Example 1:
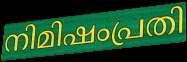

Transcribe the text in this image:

നിമിഷംപ്രതി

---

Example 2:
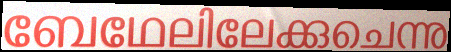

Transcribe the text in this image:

ബേഥേലിലേക്കുചെന്നു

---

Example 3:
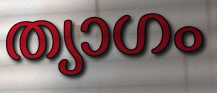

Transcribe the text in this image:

ത്യാഗം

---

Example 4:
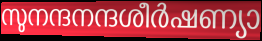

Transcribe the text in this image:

സുനന്ദനന്ദശീർഷണ്യാ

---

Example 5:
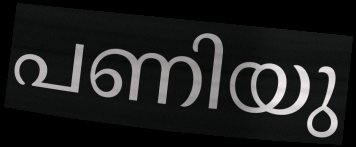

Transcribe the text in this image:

പണിയു